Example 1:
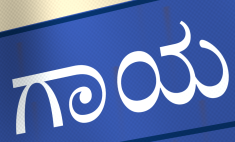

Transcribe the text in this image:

ಗಾಯ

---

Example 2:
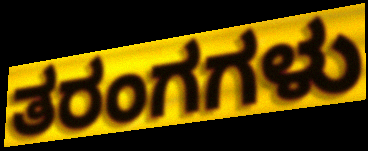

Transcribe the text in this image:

ತರಂಗಗಳು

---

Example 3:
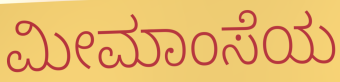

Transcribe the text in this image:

ಮೀಮಾಂಸೆಯ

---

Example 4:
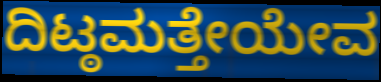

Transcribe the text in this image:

ದಿಟ್ಠಮತ್ತೇಯೇವ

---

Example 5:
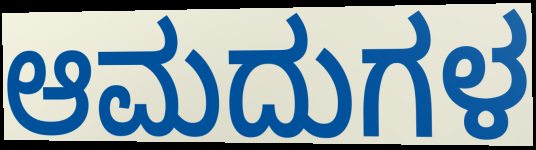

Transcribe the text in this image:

ಆಮದುಗಳ